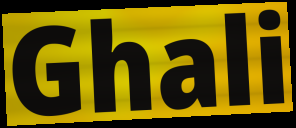
Ghali